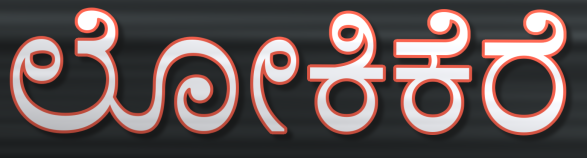
ಲೋಕಿಕೆರೆ